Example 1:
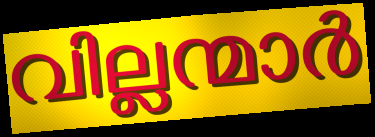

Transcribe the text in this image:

വില്ലന്മാർ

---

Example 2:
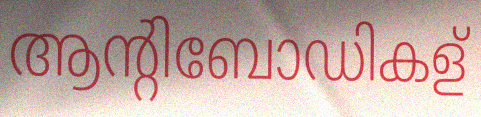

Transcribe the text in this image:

ആന്റിബോഡികള്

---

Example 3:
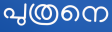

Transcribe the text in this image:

പുത്രനെ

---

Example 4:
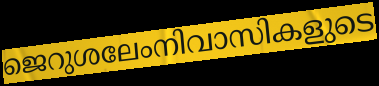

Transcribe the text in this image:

ജെറുശലേംനിവാസികളുടെ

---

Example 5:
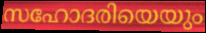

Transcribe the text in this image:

സഹോദരിയെയും